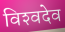
विश्वदेव